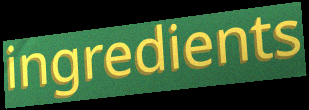
ingredients